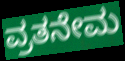
ವ್ರತನೇಮ